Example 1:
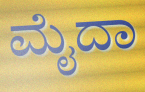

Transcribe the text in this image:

ಮೈದಾ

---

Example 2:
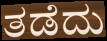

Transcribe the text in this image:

ತಡೆದು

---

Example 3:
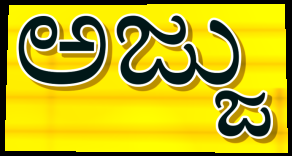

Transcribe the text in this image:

ಅಜ್ಜು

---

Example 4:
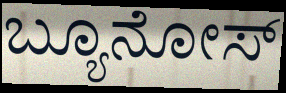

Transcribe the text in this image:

ಬ್ಯೂನೋಸ್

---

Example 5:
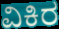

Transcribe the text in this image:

ವಿಕಿರ